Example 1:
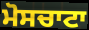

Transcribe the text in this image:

ਮੋਸਚਾਟਾ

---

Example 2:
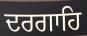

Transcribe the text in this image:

ਦਰਗਾਹਿ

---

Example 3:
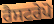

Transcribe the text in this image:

ਰੈਸਟਰੇਪੋ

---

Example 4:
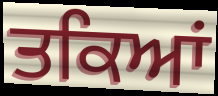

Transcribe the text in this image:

ਤਕਿਆਂ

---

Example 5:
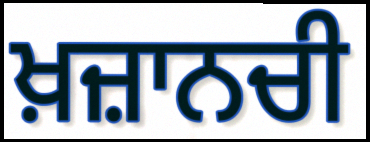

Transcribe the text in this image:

ਖ਼ਜ਼ਾਨਚੀ